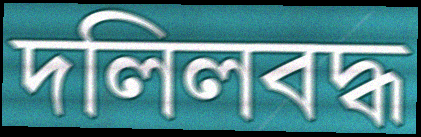
দলিলবদ্ধ